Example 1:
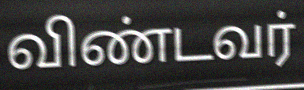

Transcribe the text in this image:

விண்டவர்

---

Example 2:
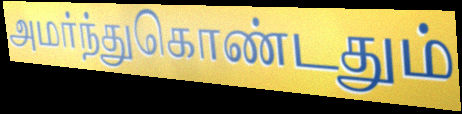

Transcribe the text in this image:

அமர்ந்துகொண்டதும்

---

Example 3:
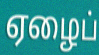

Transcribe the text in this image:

ஏழைப்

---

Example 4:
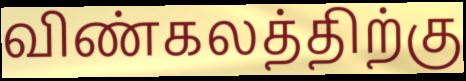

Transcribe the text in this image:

விண்கலத்திற்கு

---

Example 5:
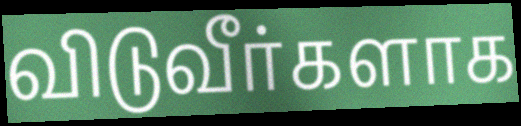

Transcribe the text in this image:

விடுவீர்களாக